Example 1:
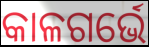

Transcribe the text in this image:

କାଳଗର୍ଭେ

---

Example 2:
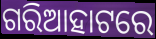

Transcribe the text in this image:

ଗରିଆହାଟରେ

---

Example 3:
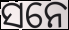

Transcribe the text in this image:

ସନେ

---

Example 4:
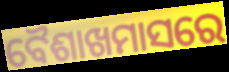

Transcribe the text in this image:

ବୈଶାଖମାସରେ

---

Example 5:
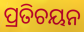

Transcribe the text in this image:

ପ୍ରତିଚୟନ